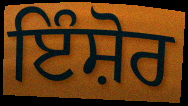
ਇੰਸ਼ੋਰ